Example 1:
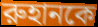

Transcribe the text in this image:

রুহানকে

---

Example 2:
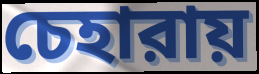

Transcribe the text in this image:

চেহারায়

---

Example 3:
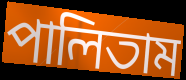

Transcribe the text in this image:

পালিতাম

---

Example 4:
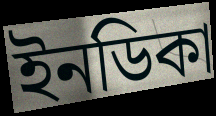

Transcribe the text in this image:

ইনডিকা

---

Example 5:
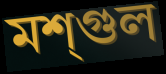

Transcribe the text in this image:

মশ্গুল